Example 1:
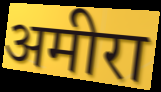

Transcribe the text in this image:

अमीरा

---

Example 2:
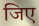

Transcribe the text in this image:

जिए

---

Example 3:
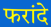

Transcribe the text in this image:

फरांदे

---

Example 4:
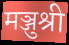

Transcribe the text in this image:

मञ्जुश्री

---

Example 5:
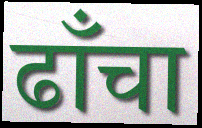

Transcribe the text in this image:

ढाँचा